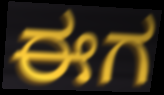
ಈಗ